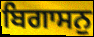
ਬਿਗਾਸਨੁ